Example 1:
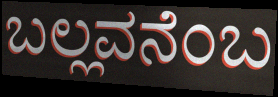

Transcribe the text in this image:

ಬಲ್ಲವನೆಂಬ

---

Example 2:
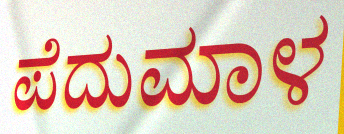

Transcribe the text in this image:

ಪೆದುಮಾಳ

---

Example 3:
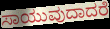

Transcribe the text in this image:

ಸಾಯುವುದಾದರೆ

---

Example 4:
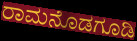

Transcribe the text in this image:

ರಾಮನೊಡಗೂಡಿ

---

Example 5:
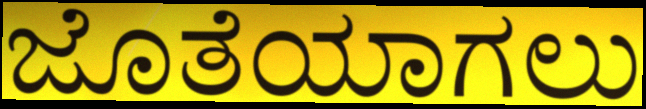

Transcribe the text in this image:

ಜೊತೆಯಾಗಲು